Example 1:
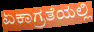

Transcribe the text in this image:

ಏಕಾಗ್ರತೆಯಲ್ಲಿ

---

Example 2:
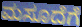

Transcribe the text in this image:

ಮಸೂದೆಗೆ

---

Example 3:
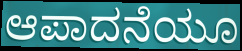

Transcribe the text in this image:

ಆಪಾದನೆಯೂ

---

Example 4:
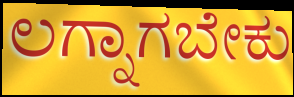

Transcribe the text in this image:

ಲಗ್ನಾಗಬೇಕು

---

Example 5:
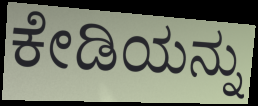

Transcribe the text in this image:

ಕೇಡಿಯನ್ನು